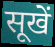
सूखें